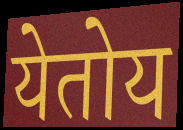
येतोय